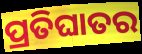
ପ୍ରତିଘାତର